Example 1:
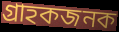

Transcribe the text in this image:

গ্ৰাহকজনক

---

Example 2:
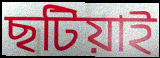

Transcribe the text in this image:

ছটিয়াই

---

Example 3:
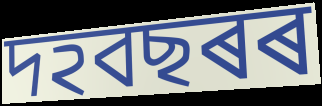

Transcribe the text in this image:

দহবছৰৰ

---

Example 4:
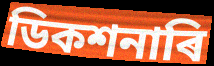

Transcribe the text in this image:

ডিকশনাৰি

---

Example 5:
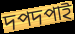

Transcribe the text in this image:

দপদপাই